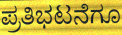
ಪ್ರತಿಭಟನೆಗೂ